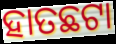
ହାତଛଟା